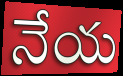
నేయ